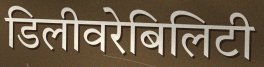
डिलीवरेबिलिटी